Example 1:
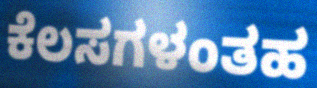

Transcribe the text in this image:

ಕೆಲಸಗಳಂತಹ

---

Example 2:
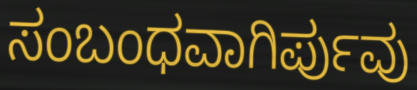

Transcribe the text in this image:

ಸಂಬಂಧವಾಗಿರ್ಪುವು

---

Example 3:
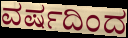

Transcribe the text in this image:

ವರ್ಷದಿಂದ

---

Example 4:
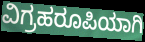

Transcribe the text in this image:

ವಿಗ್ರಹರೂಪಿಯಾಗಿ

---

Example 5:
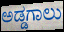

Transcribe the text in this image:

ಅಡ್ಡಗಾಲು